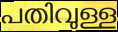
പതിവുള്ള